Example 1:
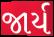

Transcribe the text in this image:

જાર્ય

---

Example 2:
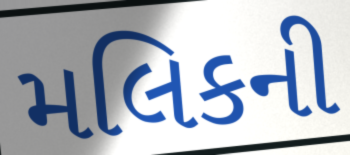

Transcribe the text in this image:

મલિકની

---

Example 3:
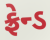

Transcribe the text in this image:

ફ્રેન્ડ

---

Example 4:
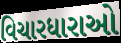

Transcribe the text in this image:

વિચારધારાઓ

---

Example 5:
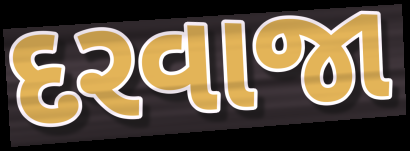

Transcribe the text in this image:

દરવાજા